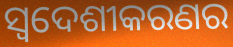
ସ୍ୱଦେଶୀକରଣର